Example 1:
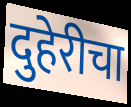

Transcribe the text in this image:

दुहेरीचा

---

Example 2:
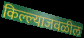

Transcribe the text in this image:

किल्ल्याजवळील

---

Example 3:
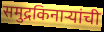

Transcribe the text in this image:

समुद्रकिनाऱ्यांची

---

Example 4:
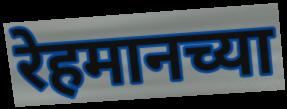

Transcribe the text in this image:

रेहमानच्या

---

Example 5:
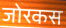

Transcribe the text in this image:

जोरकस